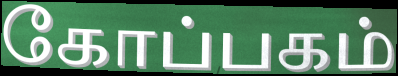
கோப்பகம்